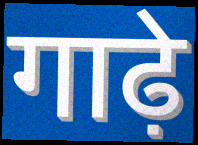
गाढ़े